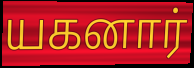
யகனார்